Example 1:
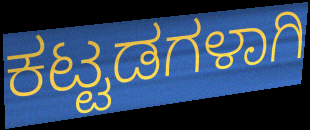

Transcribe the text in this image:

ಕಟ್ಟಡಗಳಾಗಿ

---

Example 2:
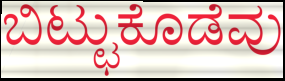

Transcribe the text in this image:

ಬಿಟ್ಟುಕೊಡೆವು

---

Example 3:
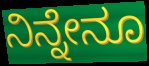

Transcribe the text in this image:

ನಿನ್ನೇನೂ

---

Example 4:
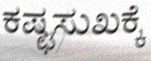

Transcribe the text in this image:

ಕಷ್ಟಸುಖಕ್ಕೆ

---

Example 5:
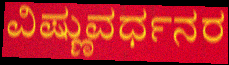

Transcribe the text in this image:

ವಿಷ್ಣುವರ್ಧನರ